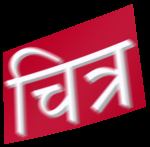
चित्र